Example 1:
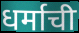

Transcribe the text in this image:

धर्माची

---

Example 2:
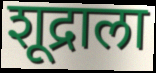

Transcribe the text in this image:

शूद्राला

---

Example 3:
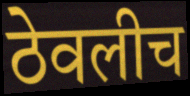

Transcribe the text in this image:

ठेवलीच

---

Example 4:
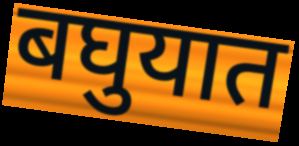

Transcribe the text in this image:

बघुयात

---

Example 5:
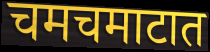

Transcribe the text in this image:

चमचमाटात